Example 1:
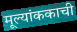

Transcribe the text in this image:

मूल्यांककाची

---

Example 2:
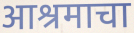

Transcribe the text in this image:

आश्रमाचा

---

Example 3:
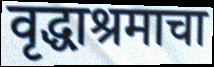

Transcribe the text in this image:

वृद्धाश्रमाचा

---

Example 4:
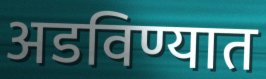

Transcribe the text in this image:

अडविण्यात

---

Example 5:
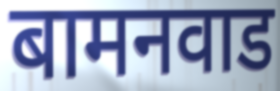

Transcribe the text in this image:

बामनवाड